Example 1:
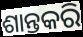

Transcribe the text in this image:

ଶାନ୍ତକରି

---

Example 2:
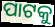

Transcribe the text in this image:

ପାଟକୁ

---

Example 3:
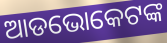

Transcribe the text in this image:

ଆଡଭୋକେଟଙ୍କ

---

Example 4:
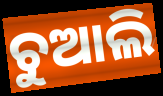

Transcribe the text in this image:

ଚୁଆଲି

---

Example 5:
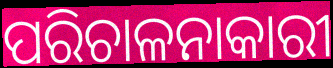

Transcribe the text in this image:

ପରିଚାଳନାକାରୀ